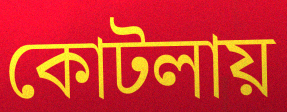
কোটলায়